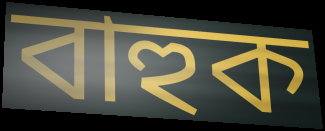
বাহুক